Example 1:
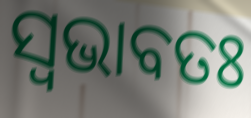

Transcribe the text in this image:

ସ୍ଵଭାବତଃ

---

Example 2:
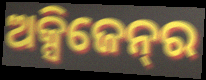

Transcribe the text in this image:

ଅକ୍ସିଜେନ୍‌ର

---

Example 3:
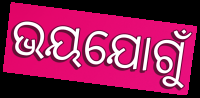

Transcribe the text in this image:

ଭୟଯୋଗୁଁ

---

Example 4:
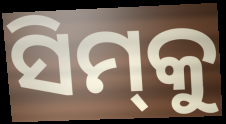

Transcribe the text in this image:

ସିମ୍‌କୁ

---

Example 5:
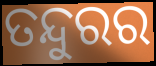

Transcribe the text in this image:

ତନ୍ଦୁରର